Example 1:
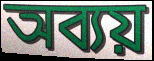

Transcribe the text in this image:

অব্যয়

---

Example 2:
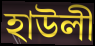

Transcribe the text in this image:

হাউলী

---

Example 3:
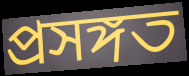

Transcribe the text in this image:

প্ৰসঙ্গত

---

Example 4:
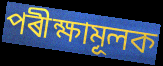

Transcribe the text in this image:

পৰীক্ষামূলক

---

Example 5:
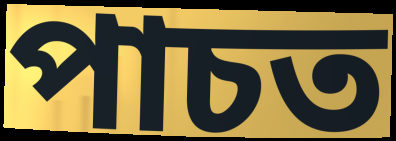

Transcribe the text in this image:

পাচত